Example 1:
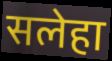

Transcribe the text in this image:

सलेहा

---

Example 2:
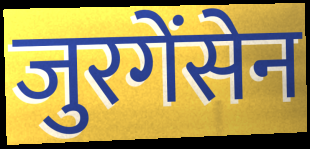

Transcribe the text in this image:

जुरगेंसेन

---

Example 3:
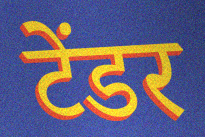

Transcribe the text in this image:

टेंडर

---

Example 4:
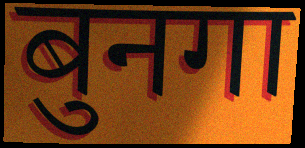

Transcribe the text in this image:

बुनगा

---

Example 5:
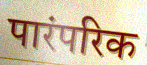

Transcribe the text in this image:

पारंपरिक